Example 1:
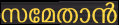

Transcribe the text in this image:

സമേതാൻ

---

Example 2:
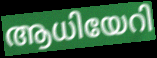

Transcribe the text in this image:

ആധിയേറി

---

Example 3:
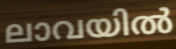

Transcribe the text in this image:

ലാവയിൽ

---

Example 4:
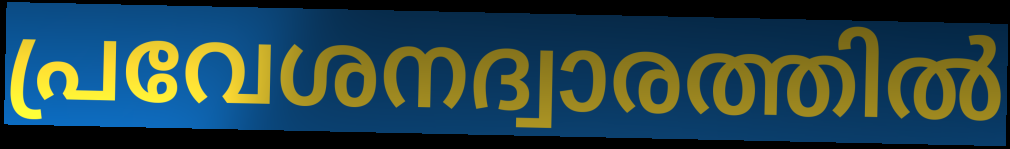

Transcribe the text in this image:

പ്രവേശനദ്വാരത്തിൽ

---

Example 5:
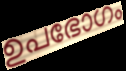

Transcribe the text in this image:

ഉപഭോഗം